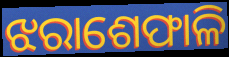
ଝରାଶେଫାଳି